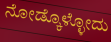
ನೋಡ್ಕೊಳ್ಳೋದು